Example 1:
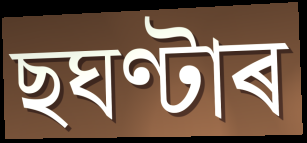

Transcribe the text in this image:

ছঘণ্টাৰ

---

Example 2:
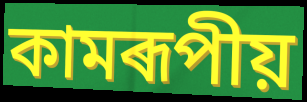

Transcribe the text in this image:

কামৰূপীয়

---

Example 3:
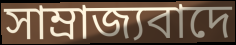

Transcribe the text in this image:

সাম্ৰাজ্যবাদে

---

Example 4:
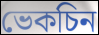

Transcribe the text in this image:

ভেকচিন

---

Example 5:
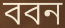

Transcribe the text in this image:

ববন